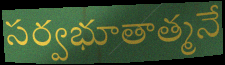
సర్వభూతాత్మనే